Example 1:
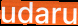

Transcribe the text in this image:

udaru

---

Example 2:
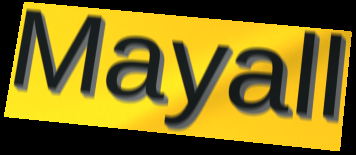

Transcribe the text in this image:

Mayall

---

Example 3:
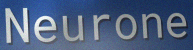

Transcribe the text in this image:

Neurone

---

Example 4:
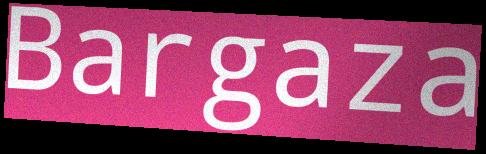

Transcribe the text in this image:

Bargaza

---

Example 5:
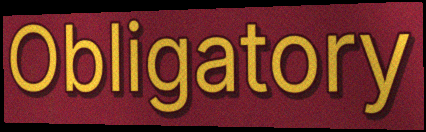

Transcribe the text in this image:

Obligatory